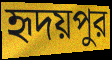
হৃদয়পুর